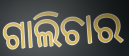
ଗାଲିଚାର